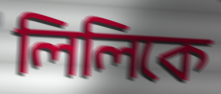
লিলিকে